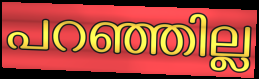
പറഞ്ഞില്ല